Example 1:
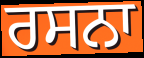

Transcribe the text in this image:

ਰਸਨਾ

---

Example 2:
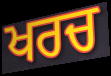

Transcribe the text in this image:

ਖਰਚ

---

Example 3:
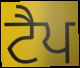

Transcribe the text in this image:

ਟੈਪ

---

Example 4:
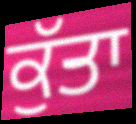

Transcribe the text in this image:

ਕੁੱਤਾ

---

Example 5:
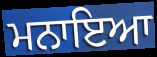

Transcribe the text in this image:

ਮਨਾਇਆ